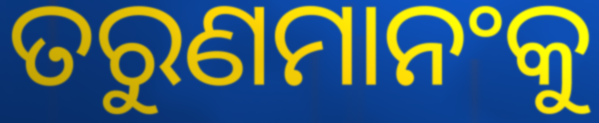
ତରୁଣମାନଂକୁ